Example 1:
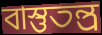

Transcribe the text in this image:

বাস্তুতন্ত্র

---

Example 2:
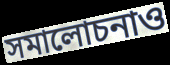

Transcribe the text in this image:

সমালোচনাও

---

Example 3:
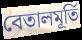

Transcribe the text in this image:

বেতালমূর্তি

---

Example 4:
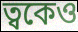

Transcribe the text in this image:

ত্বকেও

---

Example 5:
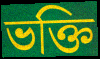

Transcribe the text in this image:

ভক্তি